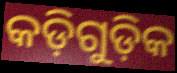
କଡ଼ିଗୁଡ଼ିକ